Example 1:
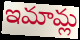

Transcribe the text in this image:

ఇమామ్ల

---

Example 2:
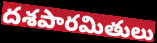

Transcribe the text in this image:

దశపారమితులు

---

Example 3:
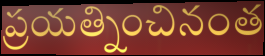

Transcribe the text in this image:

ప్రయత్నించినంత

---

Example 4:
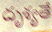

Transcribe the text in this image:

దృశ్యతే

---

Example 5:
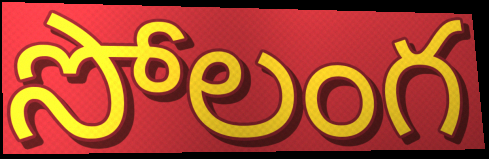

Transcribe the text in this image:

సోలంగ